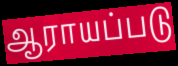
ஆராயப்படு